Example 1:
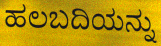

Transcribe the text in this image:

ಹಲಬದಿಯನ್ನು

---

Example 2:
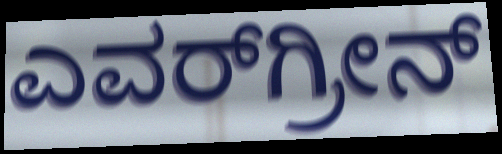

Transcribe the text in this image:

ಎವರ್‌ಗ್ರೀನ್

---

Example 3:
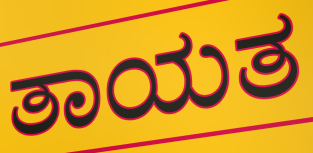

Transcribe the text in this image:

ತಾಯತ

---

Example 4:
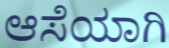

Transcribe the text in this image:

ಆಸೆಯಾಗಿ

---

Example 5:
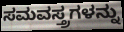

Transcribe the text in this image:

ಸಮವಸ್ತ್ರಗಳನ್ನು